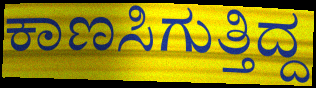
ಕಾಣಸಿಗುತ್ತಿದ್ದ